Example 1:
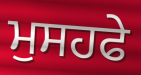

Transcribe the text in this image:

ਮੁਸਹਫੇ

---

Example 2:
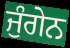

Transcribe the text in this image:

ਜੁੰਗੇਨ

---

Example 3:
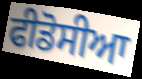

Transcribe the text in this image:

ਫੀਡੋਸੀਆ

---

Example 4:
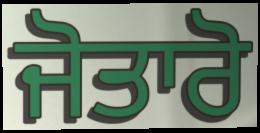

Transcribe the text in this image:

ਜੋਤਾਰੋ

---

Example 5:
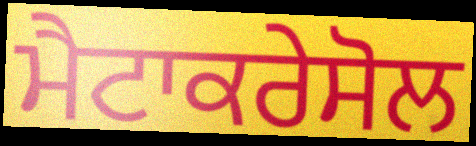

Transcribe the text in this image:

ਮੈਟਾਕਰੇਸੋਲ